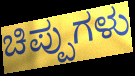
ಚಿಪ್ಪುಗಳು